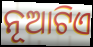
ନୂଆଟିଏ